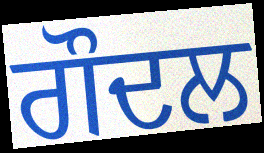
ਗੌਦਲ